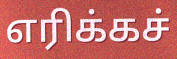
எரிக்கச்